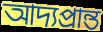
আদ্যপ্রান্ত